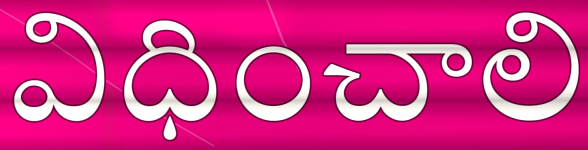
విధించాలి